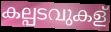
കല്പടവുകള്